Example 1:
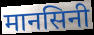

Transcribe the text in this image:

मानसिनी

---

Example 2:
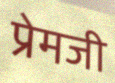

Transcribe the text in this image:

प्रेमजी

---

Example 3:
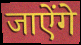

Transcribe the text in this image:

जाऐंगे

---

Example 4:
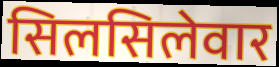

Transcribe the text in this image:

सिलसिलेवार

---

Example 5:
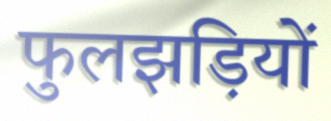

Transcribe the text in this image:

फुलझड़ियों